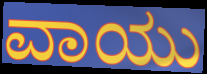
ವಾಯು